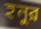
হনুর